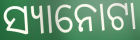
ସ୍ୟାନୋଟା